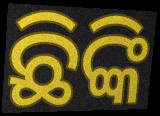
ଛିଙ୍କି